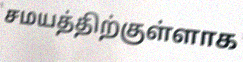
சமயத்திற்குள்ளாக